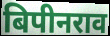
बिपीनराव